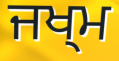
ਜਖ੍ਮ